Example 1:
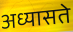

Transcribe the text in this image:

अध्यासते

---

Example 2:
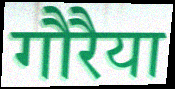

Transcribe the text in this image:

गौरैया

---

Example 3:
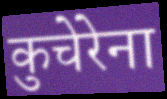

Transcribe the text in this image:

कुचेरेना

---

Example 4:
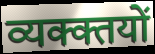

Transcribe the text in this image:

व्यक्क्तयों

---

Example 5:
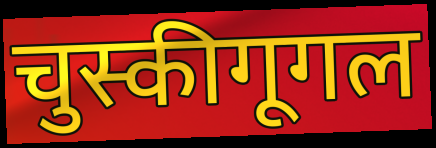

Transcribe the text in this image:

चुस्कीगूगल